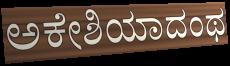
ಅಕೇಶಿಯಾದಂಥ